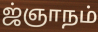
ஜ்ஞாநம்